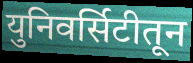
युनिवर्सिटीतून